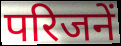
परिजनें